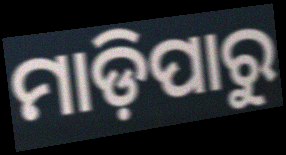
ମାଡ଼ିପାରୁ